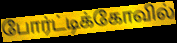
போர்ட்டிக்கோவில்